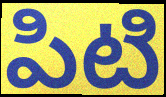
పిటి